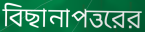
বিছানাপত্তরের